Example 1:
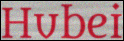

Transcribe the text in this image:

Hubei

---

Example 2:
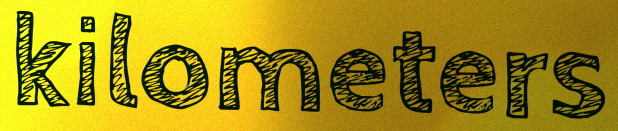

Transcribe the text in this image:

kilometers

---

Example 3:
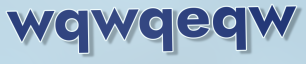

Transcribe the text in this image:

wqwqeqw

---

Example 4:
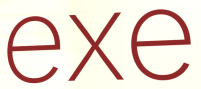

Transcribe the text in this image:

exe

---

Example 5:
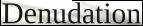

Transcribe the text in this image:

Denudation